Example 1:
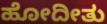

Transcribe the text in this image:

ಹೋದೀತು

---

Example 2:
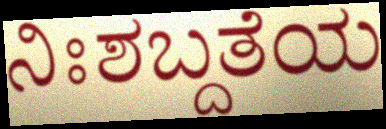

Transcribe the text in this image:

ನಿಃಶಬ್ದತೆಯ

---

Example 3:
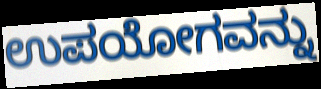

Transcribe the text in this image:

ಉಪಯೋಗವನ್ನು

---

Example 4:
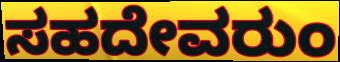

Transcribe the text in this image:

ಸಹದೇವರುಂ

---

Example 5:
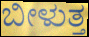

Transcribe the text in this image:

ಬೀಳುತ್ತ